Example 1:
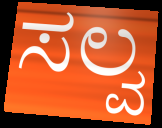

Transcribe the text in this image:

ಸಲ್ವ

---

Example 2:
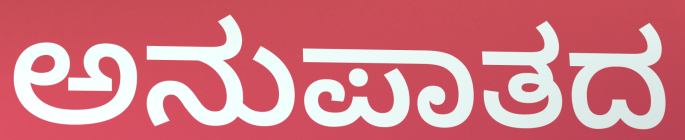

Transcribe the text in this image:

ಅನುಪಾತದ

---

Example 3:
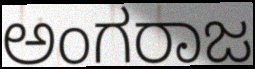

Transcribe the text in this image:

ಅಂಗರಾಜ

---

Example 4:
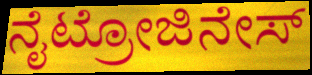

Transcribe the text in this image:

ನೈಟ್ರೋಜಿನೇಸ್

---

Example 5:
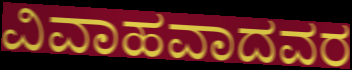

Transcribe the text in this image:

ವಿವಾಹವಾದವರ